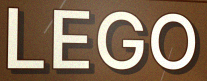
LEGO